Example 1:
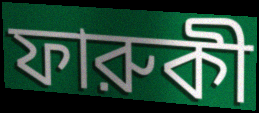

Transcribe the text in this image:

ফাৰুকী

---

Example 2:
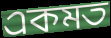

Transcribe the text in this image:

একমত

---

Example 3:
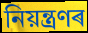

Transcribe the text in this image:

নিয়ন্ত্ৰণৰ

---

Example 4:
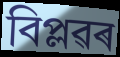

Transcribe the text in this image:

বিপ্লৱৰ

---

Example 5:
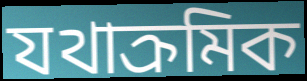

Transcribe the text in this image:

যথাক্ৰমিক